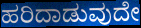
ಹರಿದಾಡುವುದೇ